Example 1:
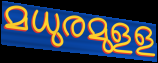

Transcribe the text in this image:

മധുരമുളള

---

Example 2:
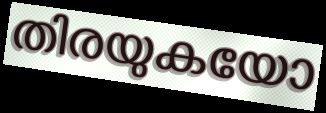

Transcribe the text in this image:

തിരയുകയോ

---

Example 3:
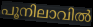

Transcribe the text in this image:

പൂനിലാവിൽ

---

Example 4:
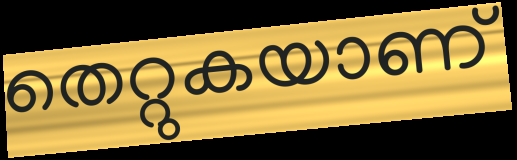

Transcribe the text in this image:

തെറ്റുകയാണ്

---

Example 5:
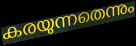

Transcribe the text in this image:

കരയുന്നതെന്നും